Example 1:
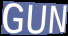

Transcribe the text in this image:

GUN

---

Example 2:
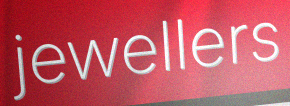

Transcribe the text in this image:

jewellers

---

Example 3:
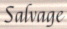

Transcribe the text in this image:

Salvage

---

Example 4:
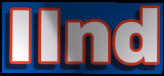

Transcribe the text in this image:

IInd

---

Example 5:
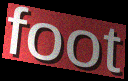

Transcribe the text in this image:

foot